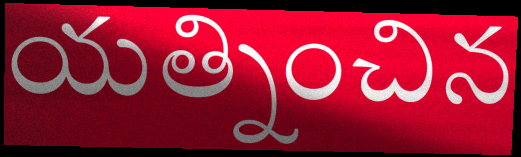
యత్నించిన